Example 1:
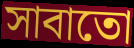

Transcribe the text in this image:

সাবাতো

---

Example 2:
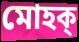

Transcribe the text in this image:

মোহক্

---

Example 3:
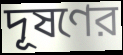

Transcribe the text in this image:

দূষণের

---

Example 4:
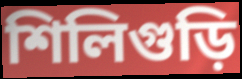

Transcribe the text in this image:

শিলিগুড়ি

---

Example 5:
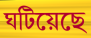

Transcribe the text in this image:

ঘটিয়েছে